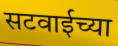
सटवाईच्या